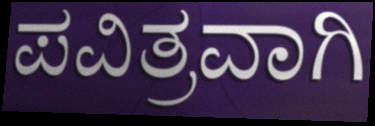
ಪವಿತ್ರವಾಗಿ